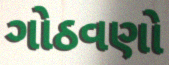
ગોઠવણો